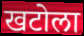
खटोला